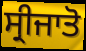
ਸ੍ਰੀਜਾਤੋ